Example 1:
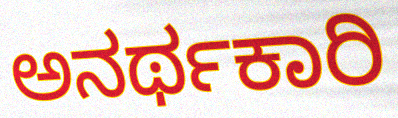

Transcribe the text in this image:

ಅನರ್ಥಕಾರಿ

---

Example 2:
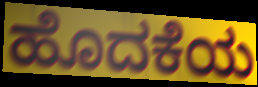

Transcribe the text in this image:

ಹೊದಕೆಯ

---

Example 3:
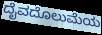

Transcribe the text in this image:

ದೈವದೊಲುಮೆಯ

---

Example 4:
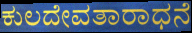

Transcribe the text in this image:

ಕುಲದೇವತಾರಾಧನೆ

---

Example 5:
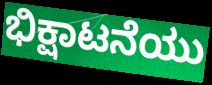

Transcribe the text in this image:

ಭಿಕ್ಷಾಟನೆಯು